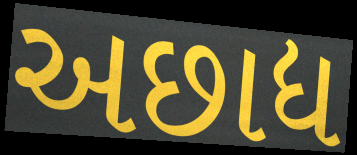
અછાદ્ય